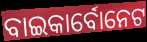
ବାଇକାର୍ବୋନେଟ